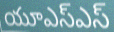
యూఎస్ఎస్